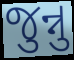
જુન્નુ